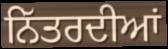
ਨਿੱਤਰਦੀਆਂ